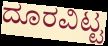
ದೂರವಿಟ್ಟ